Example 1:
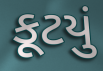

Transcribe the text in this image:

કૂટયું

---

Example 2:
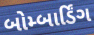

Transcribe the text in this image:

બોમ્બાર્ડિંગ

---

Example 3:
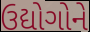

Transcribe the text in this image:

ઉદ્યોગોને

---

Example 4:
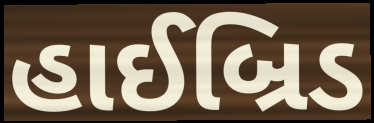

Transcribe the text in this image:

હાઈબ્રિડ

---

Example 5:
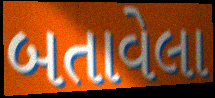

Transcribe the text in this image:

બતાવેલા